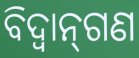
ବିଦ୍ୱାନ୍‌ଗଣ